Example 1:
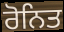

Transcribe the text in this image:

ਰੋਨਿਤ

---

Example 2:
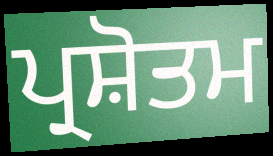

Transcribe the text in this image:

ਪ੍ਰਸ਼ੋਤਮ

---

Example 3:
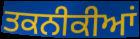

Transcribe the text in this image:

ਤਕਨੀਕੀਆਂ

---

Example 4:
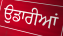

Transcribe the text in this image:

ਉੁਡਾਰੀਆਂ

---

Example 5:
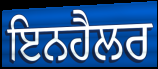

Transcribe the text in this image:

ਇਨਹੈਲਰ